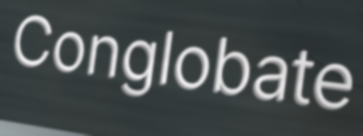
Conglobate